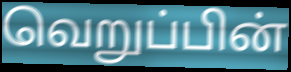
வெறுப்பின்